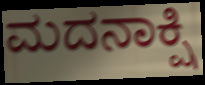
ಮದನಾಕ್ಷಿ